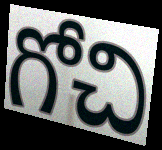
గోచి